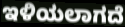
ಇಳಿಯಲಾಗದೆ